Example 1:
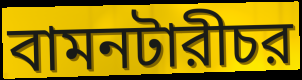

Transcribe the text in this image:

বামনটারীচর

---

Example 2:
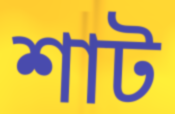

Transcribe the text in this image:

শাট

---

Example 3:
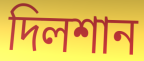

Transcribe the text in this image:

দিলশান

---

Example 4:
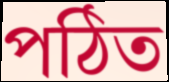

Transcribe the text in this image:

পঠিত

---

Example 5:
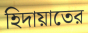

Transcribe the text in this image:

হিদায়াতের